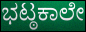
ಭಟ್ಠಕಾಲೇ